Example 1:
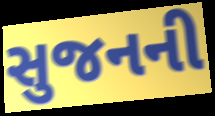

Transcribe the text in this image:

સુજનની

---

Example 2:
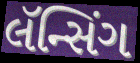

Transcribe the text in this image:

લૅન્સિંગ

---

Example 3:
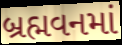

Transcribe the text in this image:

બ્રહ્મવનમાં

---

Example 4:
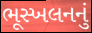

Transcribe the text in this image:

ભૂસ્ખલનનું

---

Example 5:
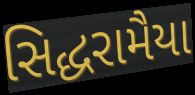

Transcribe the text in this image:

સિદ્ધરામૈયા